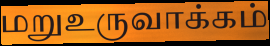
மறுஉருவாக்கம்